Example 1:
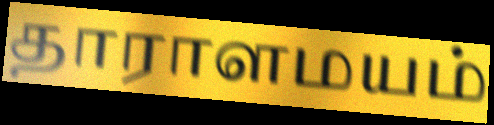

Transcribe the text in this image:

தாராளமயம்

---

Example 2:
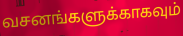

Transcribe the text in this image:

வசனங்களுக்காகவும்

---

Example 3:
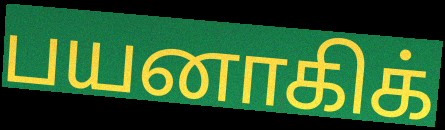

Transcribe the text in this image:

பயனாகிக்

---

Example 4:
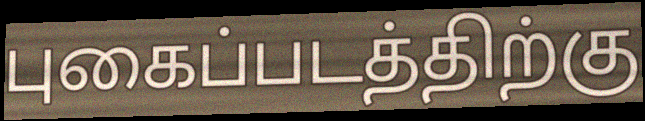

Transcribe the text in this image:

புகைப்படத்திற்கு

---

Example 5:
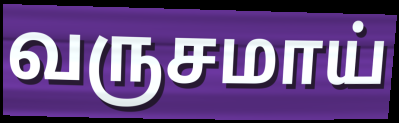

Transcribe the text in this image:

வருசமாய்